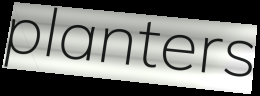
planters